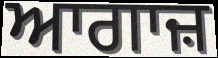
ਆਗਾਜ਼